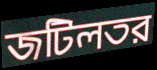
জটিলতর